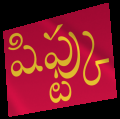
షిఫ్ట్కు